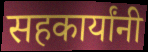
सहकार्यांनी